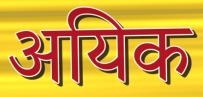
अयिक